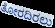
ತೋರದಿರಲು